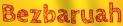
Bezbaruah